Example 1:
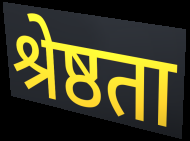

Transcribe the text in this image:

श्रेष्ठता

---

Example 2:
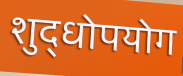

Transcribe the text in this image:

शुद्धोपयोग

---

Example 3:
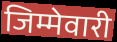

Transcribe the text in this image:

जिम्मेवारी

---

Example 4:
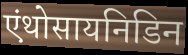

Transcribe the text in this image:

एंथोसायनिडिन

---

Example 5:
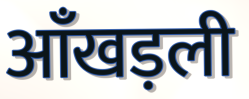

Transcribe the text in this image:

आँखड़ली